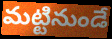
మట్టినుండే